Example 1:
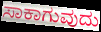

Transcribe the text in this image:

ಸಾಕಾಗುವುದು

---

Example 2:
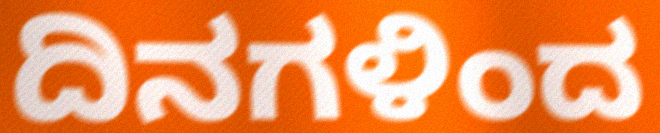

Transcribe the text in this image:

ದಿನಗಳಿಂದ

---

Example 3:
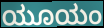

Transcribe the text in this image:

ಯೂಯಂ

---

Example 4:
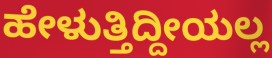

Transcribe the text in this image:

ಹೇಳುತ್ತಿದ್ದೀಯಲ್ಲ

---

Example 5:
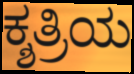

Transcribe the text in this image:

ಕ್ಶತ್ರಿಯ